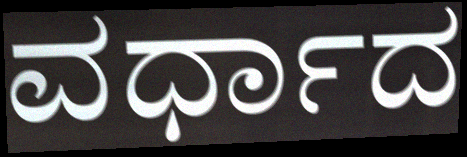
ವರ್ಧಾದ